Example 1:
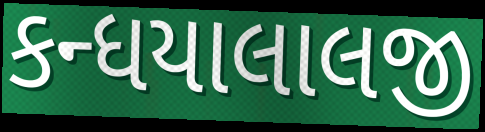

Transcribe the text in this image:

કન્ધયાલાલજી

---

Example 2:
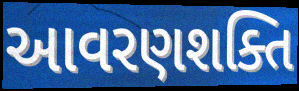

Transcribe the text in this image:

આવરણશક્તિ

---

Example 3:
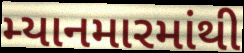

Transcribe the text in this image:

મ્યાનમારમાંથી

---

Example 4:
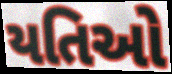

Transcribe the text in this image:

યતિઓ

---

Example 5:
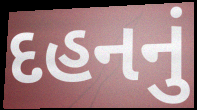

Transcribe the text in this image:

દહનનું